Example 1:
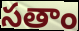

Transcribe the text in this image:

సతాం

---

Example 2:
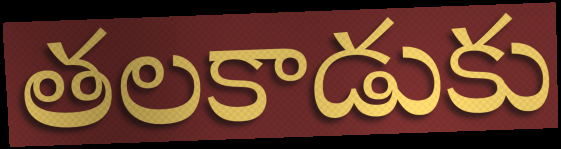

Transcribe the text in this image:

తలకాడుకు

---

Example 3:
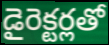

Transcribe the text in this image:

డైరెక్టర్లతో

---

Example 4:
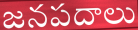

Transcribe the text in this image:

జనపదాలు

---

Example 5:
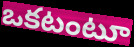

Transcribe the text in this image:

ఒకటంటూ